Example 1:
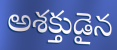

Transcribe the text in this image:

అశక్తుడైన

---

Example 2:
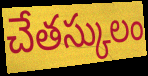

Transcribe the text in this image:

చేతస్కులం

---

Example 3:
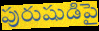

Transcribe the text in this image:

పురుషుడిపై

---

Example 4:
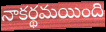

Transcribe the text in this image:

నాకర్థమయింది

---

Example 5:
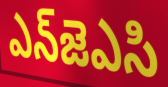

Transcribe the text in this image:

ఎన్‌జెఎసి